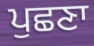
ਪੁਛਣਾ